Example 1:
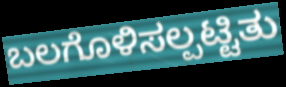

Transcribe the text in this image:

ಬಲಗೊಳಿಸಲ್ಪಟ್ಟಿತು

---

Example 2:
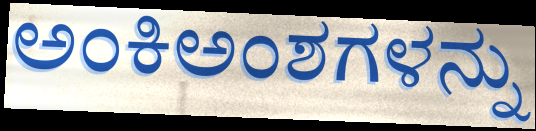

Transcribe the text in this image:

ಅಂಕಿಅಂಶಗಳನ್ನು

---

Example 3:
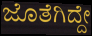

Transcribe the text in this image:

ಜೊತೆಗಿದ್ದೇ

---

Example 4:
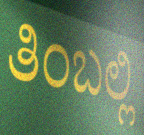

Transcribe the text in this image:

ತಿಂಬಲ್ಲಿ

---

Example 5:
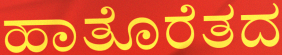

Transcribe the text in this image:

ಹಾತೊರೆತದ